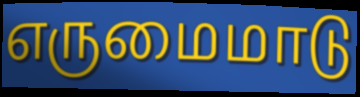
எருமைமாடு